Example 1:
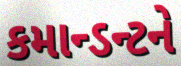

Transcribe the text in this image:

કમાન્ડન્ટને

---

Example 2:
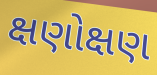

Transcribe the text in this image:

ક્ષણોક્ષણ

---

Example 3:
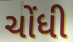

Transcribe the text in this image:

ચોંધી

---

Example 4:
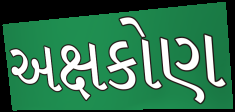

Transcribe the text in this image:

અક્ષકોણ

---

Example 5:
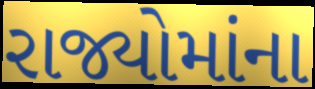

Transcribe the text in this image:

રાજ્યોમાંના